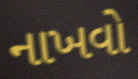
નાખવો